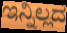
ಇನ್ನಿಲ್ಲದ